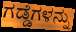
ಗಡ್ಡೆಗಳನ್ನು